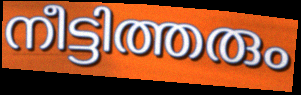
നീട്ടിത്തരും